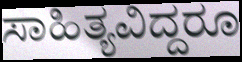
ಸಾಹಿತ್ಯವಿದ್ದರೂ